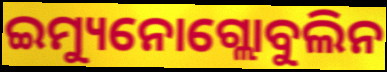
ଇମ୍ୟୁନୋଗ୍ଲୋବୁଲିନ